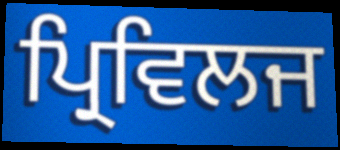
ਪ੍ਰਿਵਿਲਜ